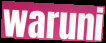
waruni